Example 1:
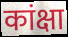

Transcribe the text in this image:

कांक्षा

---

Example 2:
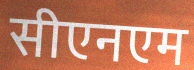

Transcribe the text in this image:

सीएनएम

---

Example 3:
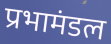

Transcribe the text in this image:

प्रभामंडल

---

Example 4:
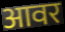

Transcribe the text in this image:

आवर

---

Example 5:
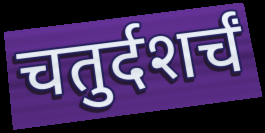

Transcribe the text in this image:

चतुर्दशर्चं